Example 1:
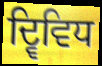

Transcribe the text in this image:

ਦ੍ਵਿਵਿਧ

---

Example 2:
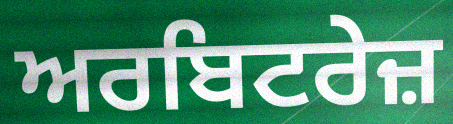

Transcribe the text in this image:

ਅਰਬਿਟਰੇਜ਼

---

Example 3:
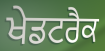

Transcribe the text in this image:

ਖੇਡਟਰੈਕ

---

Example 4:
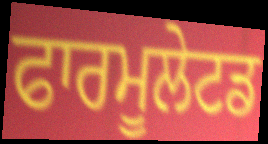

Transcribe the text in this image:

ਫਾਰਮੂਲੇਟਡ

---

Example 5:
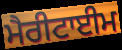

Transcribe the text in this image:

ਮੈਰੀਟਾਈਮ